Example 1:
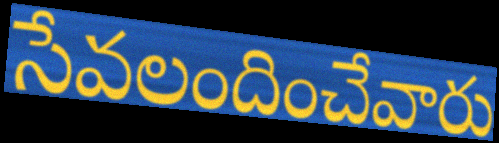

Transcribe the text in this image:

సేవలందించేవారు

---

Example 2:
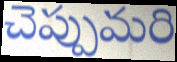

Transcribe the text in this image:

చెప్పుమరి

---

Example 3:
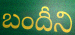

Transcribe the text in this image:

బందీని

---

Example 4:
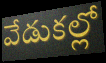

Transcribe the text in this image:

వేడుకల్లో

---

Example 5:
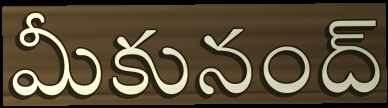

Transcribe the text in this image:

మీకునంద్